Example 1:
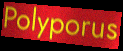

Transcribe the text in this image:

Polyporus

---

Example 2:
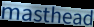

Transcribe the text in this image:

masthead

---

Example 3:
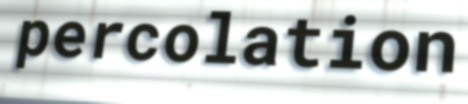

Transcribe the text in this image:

percolation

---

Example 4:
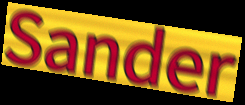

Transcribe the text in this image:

Sander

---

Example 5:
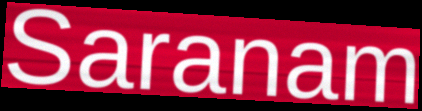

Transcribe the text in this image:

Saranam